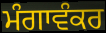
ਮੰਗਾਵੰਕਰ